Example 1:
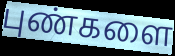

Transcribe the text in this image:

புண்களை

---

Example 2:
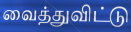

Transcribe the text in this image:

வைத்துவிட்டு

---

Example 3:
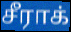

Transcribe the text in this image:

சீராக்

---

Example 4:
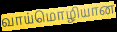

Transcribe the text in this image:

வாய்மொழியான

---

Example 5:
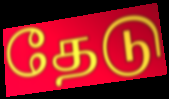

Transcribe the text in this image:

தேடு